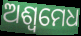
ଅଶ୍ଵମେଧ